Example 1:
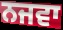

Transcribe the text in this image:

ਨਜਵਾ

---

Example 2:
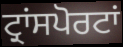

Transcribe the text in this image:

ਟ੍ਰਾਂਸਪੋਰਟਾਂ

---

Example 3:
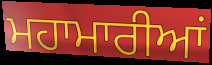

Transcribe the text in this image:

ਮਹਾਮਾਰੀਆਂ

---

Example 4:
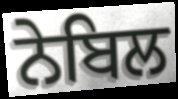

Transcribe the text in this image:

ਨੇਬਿਲ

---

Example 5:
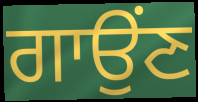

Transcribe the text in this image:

ਗਾਉਂਣ